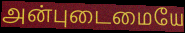
அன்புடைமையே